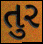
તુર